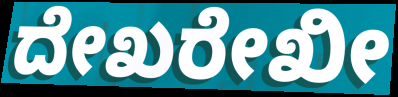
ದೇಖರೇಖೀ